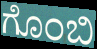
ಗೊಂಬಿ